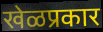
खेळप्रकार